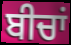
ਬੀਚਾਂ